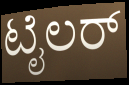
ಟೈಲರ್